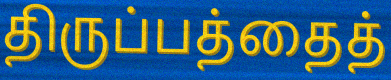
திருப்பத்தைத்